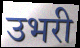
उभरी